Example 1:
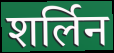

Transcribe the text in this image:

शर्लिन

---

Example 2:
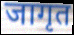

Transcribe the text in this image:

जागृत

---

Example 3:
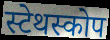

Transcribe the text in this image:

स्टेथस्कोप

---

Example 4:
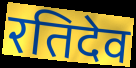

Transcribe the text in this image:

रतिदेव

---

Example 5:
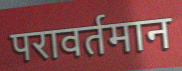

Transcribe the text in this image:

परावर्तमान